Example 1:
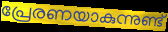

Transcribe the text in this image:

പ്രേരണയാകുന്നുണ്ട്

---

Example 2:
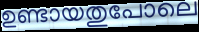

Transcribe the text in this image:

ഉണ്ടായതുപോലെ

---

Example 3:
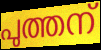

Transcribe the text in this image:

പുത്തന്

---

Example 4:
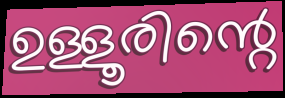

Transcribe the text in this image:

ഉള്ളൂരിന്റെ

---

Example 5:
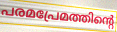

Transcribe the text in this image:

പരമപ്രേമത്തിന്റെ